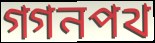
গগনপথ